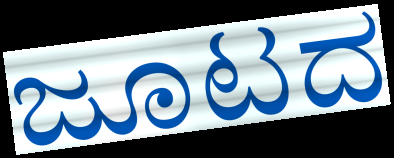
ಜೂಟದ